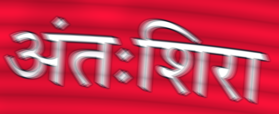
अंतःशिरा